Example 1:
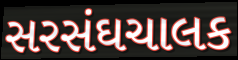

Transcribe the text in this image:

સરસંઘચાલક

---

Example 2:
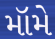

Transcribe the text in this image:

મૉમે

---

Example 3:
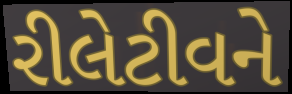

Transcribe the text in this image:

રીલેટીવને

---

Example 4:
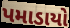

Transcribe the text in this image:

પમાડાયો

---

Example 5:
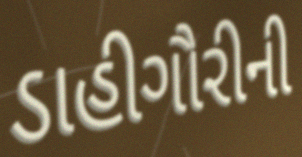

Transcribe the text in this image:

ડાહીગૌરીની